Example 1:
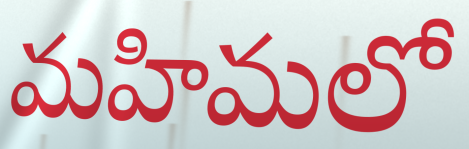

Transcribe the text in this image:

మహిమలో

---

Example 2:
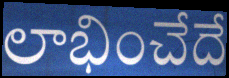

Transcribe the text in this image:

లాభించేదే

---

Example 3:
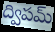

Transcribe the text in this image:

ద్విపమ్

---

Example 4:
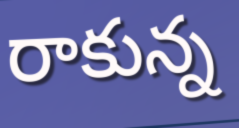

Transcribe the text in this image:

రాకున్న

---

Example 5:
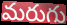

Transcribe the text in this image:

మరుగు